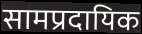
सामप्रदायिक